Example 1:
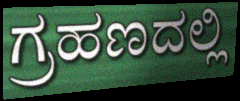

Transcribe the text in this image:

ಗ್ರಹಣದಲ್ಲಿ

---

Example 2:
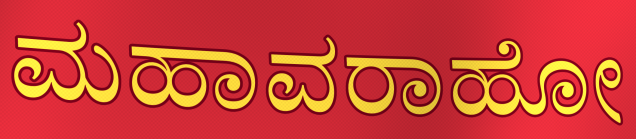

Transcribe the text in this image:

ಮಹಾವರಾಹೋ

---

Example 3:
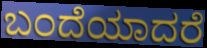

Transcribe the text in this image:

ಬಂದೆಯಾದರೆ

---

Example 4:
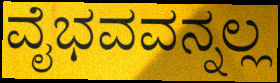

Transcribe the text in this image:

ವೈಭವವನ್ನಲ್ಲ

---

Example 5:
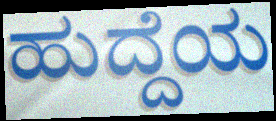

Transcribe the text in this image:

ಹುದ್ದೆಯ